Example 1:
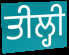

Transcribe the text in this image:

ਤੀਲ੍ਹੀ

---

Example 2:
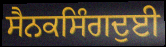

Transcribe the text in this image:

ਸੈਨਕਸਿੰਗਦੁਈ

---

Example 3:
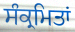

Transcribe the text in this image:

ਸੰਕ੍ਰਮਿਤਾਂ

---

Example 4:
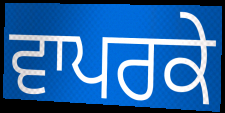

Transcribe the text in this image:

ਵਾਪਰਕੇ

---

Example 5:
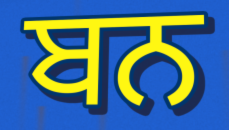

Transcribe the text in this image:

ਬਨ